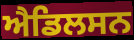
ਐਡਿਲਸਨ